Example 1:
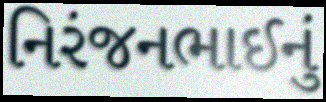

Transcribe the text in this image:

નિરંજનભાઈનું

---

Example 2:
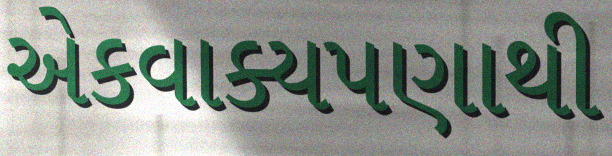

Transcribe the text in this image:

એકવાક્યપણાથી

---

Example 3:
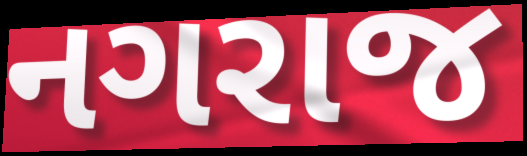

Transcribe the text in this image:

નગરાજ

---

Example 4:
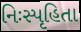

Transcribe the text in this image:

નિઃસ્પૃહિતા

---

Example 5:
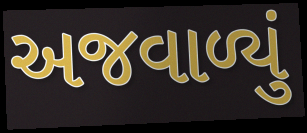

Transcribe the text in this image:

અજવાળ્યું